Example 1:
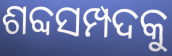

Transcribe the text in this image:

ଶବ୍ଦସମ୍ପଦକୁ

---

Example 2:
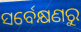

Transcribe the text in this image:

ସର୍ବେକ୍ଷଣରୁ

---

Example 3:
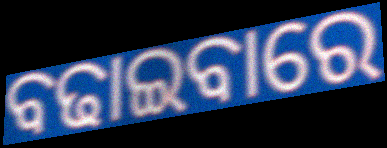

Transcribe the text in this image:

ବଢାଇବାରେ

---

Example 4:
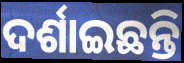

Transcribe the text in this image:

ଦର୍ଶାଇଛନ୍ତି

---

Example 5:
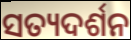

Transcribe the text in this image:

ସତ୍ୟଦର୍ଶନ